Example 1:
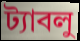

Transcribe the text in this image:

ট্যাবলু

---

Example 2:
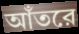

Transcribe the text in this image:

আঁতরে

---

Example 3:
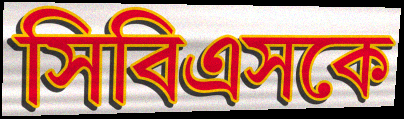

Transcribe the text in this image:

সিবিএসকে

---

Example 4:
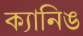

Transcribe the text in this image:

ক্যানিঙ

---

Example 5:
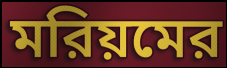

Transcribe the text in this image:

মরিয়মের